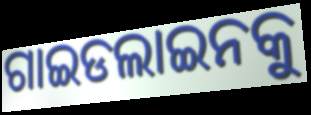
ଗାଇଡଲାଇନକୁ